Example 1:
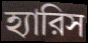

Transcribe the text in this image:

হ্যারিস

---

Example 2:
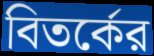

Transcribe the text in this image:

বিতর্কের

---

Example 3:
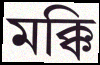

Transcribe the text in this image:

মক্কি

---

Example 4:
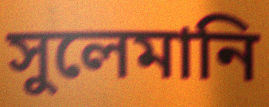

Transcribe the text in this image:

সুলেমানি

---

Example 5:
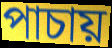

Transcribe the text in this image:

পাচায়